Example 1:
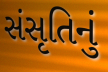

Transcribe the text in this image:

સંસૃતિનું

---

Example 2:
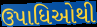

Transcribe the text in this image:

ઉપાધિઓથી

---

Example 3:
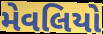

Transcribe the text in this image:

મેવલિયો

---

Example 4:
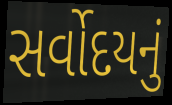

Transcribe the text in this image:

સર્વોદયનું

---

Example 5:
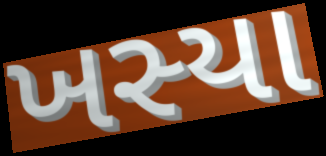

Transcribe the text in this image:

ખસ્યા